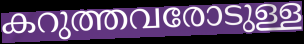
കറുത്തവരോടുള്ള